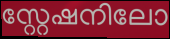
സ്റ്റേഷനിലോ